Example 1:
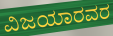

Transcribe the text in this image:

ವಿಜಯಾರವರ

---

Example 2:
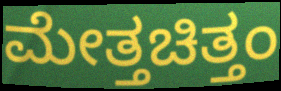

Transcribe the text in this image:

ಮೇತ್ತಚಿತ್ತಂ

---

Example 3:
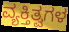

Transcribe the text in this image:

ವ್ಯಕ್ತಿತ್ವಗಳ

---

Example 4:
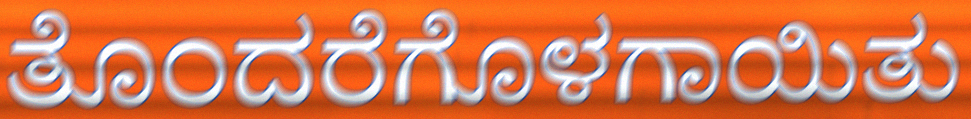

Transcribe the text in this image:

ತೊಂದರೆಗೊಳಗಾಯಿತು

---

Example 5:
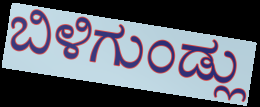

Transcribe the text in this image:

ಬಿಳಿಗುಂಡ್ಲು